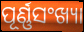
ପୂର୍ଣ୍ଣସଂଖ୍ୟା